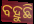
ବହୁଛି